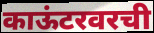
काऊंटरवरची